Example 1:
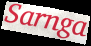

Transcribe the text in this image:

Sarnga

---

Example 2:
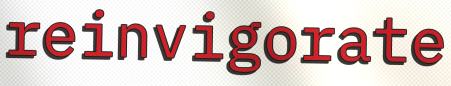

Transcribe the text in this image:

reinvigorate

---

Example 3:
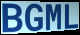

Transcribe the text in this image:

BGML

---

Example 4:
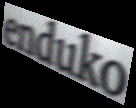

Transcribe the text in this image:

enduko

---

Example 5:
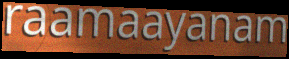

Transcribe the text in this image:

raamaayanam